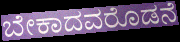
ಬೇಕಾದವರೊಡನೆ